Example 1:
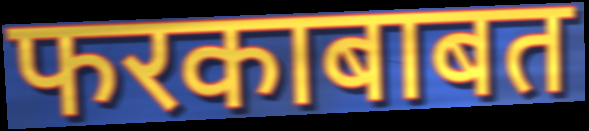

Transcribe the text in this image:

फरकाबाबत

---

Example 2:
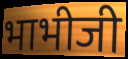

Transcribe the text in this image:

भाभीजी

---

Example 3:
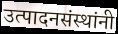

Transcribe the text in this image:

उत्पादनसंस्थांनी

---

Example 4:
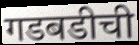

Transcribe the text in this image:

गडबडीची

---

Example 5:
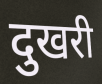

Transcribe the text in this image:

दुखरी